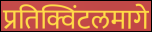
प्रतिक्विंटलमागे